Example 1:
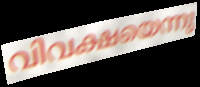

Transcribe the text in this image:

വിവക്ഷയെന്നു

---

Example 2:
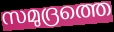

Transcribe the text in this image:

സമുദ്രത്തെ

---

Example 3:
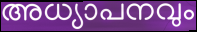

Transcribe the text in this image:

അധ്യാപനവും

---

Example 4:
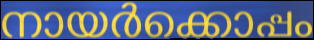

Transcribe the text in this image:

നായർക്കൊപ്പം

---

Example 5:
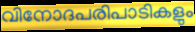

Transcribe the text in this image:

വിനോദപരിപാടികളും